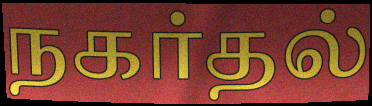
நகர்தல்